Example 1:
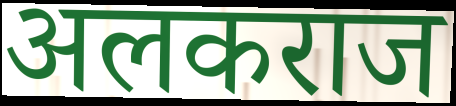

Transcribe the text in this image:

अलकराज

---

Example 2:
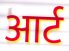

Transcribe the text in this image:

आर्ट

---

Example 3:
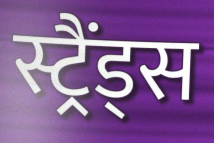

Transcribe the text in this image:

स्ट्रैंड्स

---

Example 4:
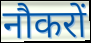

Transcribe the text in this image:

नौकरों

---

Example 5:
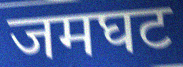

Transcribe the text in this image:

जमघट